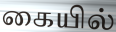
கையில்